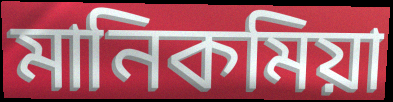
মানিকমিয়া